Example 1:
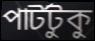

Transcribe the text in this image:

পার্টটুকু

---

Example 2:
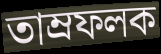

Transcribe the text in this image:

তাম্রফলক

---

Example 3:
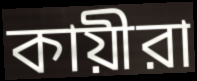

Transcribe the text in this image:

কায়ীরা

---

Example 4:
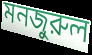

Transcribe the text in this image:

মনজুরুল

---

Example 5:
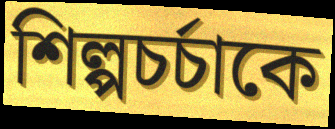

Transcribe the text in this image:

শিল্পচর্চাকে